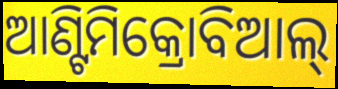
ଆଣ୍ଟିମିକ୍ରୋବିଆଲ୍